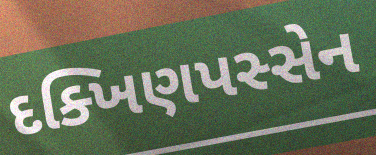
દક્ખિણપસ્સેન